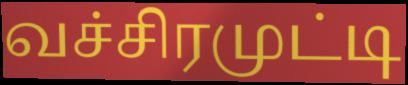
வச்சிரமுட்டி